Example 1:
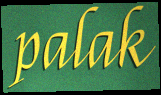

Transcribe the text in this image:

palak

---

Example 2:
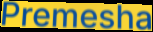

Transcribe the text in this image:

Premesha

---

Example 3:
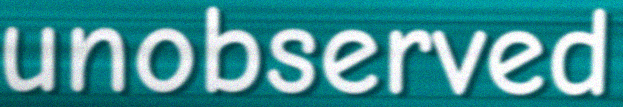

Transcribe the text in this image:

unobserved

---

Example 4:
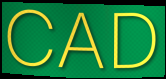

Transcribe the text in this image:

CAD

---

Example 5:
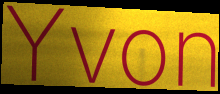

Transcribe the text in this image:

Yvon